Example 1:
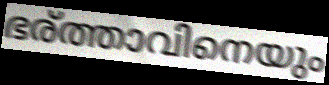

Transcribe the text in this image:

ഭര്ത്താവിനെയും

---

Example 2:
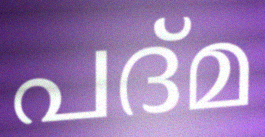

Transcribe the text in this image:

പദ്മ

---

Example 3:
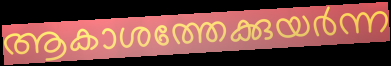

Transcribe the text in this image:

ആകാശത്തേക്കുയർന്ന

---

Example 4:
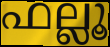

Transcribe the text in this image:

ഫല്ലൂ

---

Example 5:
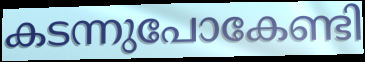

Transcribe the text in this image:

കടന്നുപോകേണ്ടി